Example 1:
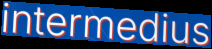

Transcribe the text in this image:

intermedius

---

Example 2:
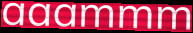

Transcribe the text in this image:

aaammm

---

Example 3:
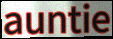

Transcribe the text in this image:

auntie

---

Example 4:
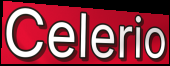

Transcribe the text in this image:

Celerio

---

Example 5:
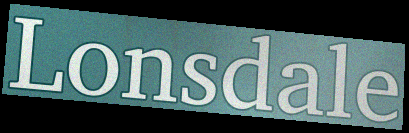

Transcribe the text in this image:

Lonsdale